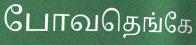
போவதெங்கே